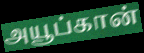
அயூப்கான்